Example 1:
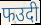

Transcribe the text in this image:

फउदी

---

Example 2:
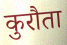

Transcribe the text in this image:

कुरौता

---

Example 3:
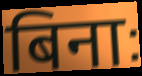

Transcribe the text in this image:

बिनाः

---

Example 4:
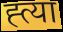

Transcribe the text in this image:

ह्त्या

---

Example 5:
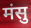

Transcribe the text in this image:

मंसु